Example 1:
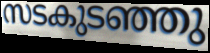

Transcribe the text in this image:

സടകുടഞ്ഞു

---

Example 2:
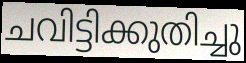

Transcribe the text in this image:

ചവിട്ടിക്കുതിച്ചു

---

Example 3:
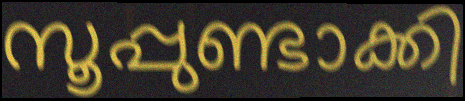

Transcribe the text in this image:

സൂപ്പുണ്ടാക്കി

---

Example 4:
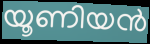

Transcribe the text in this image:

യൂണിയൻ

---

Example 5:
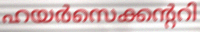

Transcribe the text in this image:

ഹയർസെക്കന്ററി